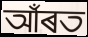
আঁৰত